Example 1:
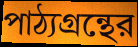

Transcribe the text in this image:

পাঠ্যগ্রন্থের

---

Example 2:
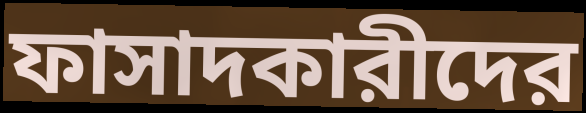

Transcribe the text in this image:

ফাসাদকারীদের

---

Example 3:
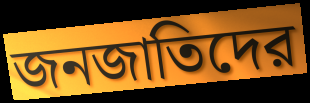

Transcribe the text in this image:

জনজাতিদের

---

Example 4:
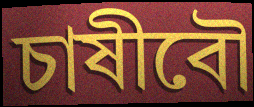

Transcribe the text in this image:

চাষীবৌ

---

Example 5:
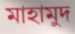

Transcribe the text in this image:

মাহামুদ